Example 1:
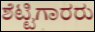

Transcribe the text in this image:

ಶೆಟ್ಟಿಗಾರರು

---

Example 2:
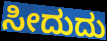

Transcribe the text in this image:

ಸೀದುದು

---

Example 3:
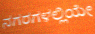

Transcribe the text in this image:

ನಗರಗಳಲ್ಲಿಯೇ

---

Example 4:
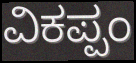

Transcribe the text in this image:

ವಿಕಪ್ಪಂ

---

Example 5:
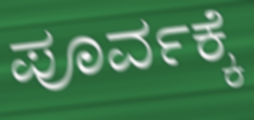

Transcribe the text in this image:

ಪೂರ್ವಕ್ಕೆ